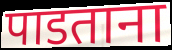
पाडताना